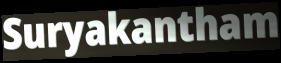
Suryakantham